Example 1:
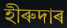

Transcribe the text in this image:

হীৰুদাৰ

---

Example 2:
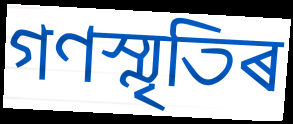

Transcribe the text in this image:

গণস্মৃতিৰ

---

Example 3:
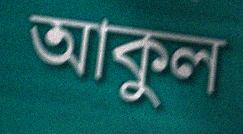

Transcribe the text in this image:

আকুল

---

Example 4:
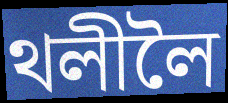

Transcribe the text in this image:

থলীলৈ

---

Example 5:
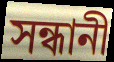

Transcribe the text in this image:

সন্ধানী